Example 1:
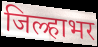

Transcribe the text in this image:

जिल्हाभर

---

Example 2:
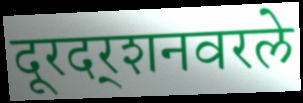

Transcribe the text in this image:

दूरदर्शनवरले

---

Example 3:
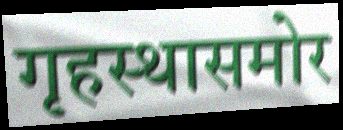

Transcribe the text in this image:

गृहस्थासमोर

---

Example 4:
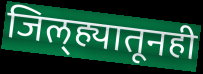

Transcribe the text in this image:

जिल्ह्यातूनही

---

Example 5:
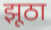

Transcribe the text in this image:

झूठा